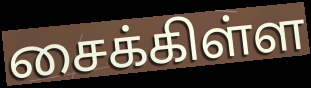
சைக்கிள்ள